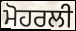
ਮੋਹਰਲੀ